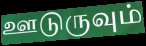
ஊடுருவும்